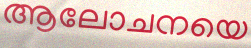
ആലോചനയെ